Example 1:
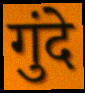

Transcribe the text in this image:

गुंदे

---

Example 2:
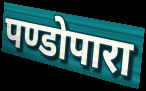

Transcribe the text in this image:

पण्डोपारा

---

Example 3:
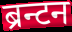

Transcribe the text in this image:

ब्रन्टन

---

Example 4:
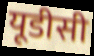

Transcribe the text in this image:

यूडीसी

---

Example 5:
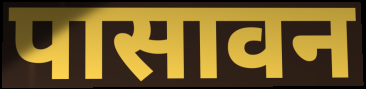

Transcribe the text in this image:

पासावन